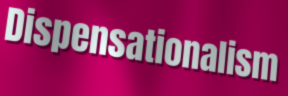
Dispensationalism